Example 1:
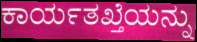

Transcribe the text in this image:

ಕಾರ್ಯತಖ್ತೆಯನ್ನು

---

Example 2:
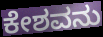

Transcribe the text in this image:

ಕೇಶವನು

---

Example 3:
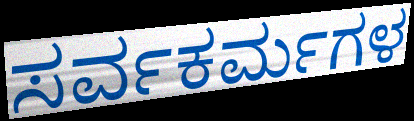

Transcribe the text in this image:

ಸರ್ವಕರ್ಮಗಳ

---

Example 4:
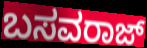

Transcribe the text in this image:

ಬಸವರಾಜ್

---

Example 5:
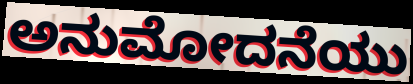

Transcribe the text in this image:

ಅನುಮೋದನೆಯು